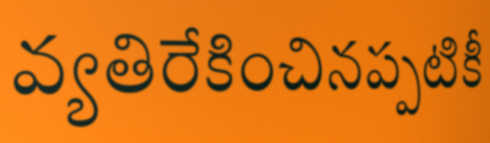
వ్యతిరేకించినప్పటికీ